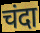
चंदा